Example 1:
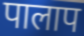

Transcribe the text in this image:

पालाप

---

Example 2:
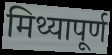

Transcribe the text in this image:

मिथ्यापूर्ण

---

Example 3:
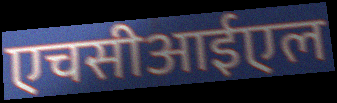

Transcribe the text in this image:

एचसीआईएल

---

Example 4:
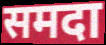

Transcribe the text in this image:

समदा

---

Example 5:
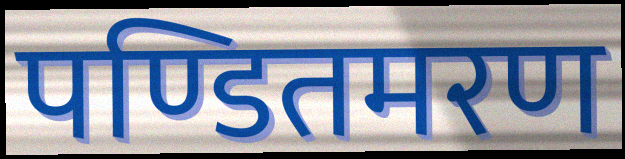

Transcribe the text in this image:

पण्डितमरण